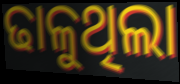
ଢାଳୁଥିଲା